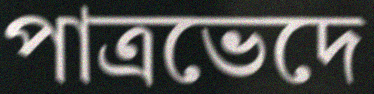
পাত্রভেদে